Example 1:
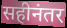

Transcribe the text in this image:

सहीनंतर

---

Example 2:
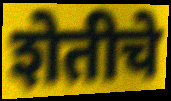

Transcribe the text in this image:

शेतीचे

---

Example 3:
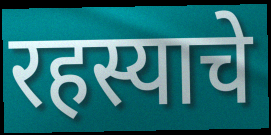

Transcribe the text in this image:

रहस्याचे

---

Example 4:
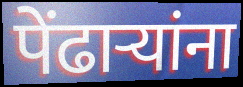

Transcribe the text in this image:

पेंढाऱ्यांना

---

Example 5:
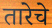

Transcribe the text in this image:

तारेचे